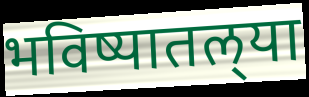
भविष्यातल्या